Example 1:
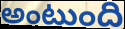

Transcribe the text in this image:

అంటుంది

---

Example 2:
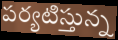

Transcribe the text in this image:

పర్యటిస్తున్న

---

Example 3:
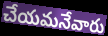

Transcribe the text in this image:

చేయమనేవారు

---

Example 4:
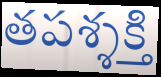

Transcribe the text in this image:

తపశ్శక్తి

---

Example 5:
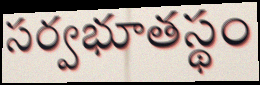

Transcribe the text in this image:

సర్వభూతస్థం